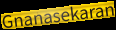
Gnanasekaran